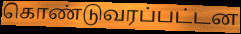
கொண்டுவரப்பட்டன